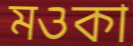
মওকা